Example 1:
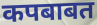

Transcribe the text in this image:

कपबाबत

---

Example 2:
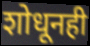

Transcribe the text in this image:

शोधूनही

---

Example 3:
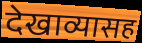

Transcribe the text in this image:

देखाव्यासह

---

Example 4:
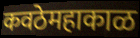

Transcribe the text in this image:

कवठेमहाकाळ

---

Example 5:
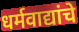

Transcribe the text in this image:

धर्मवाद्यांचे